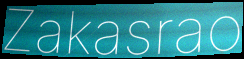
Zakasrao